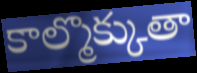
కాల్మొక్కుతా